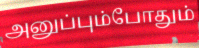
அனுப்பும்போதும்